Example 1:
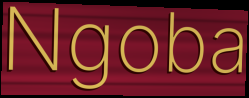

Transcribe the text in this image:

Ngoba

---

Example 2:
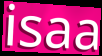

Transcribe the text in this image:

isaa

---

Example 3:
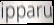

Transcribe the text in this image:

ipparu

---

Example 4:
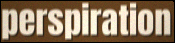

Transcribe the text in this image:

perspiration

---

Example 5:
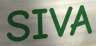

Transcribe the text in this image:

SIVA